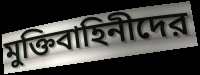
মুক্তিবাহিনীদের